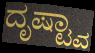
ದೃಷ್ಟ್ವಾ